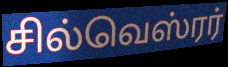
சில்வெஸ்ரர்